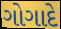
ગોગાદે